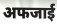
अफजाई